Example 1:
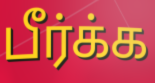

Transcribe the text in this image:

பீர்க்க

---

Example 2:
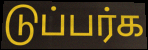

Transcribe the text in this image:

டுப்பர்க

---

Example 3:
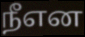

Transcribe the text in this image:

நீஎன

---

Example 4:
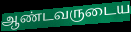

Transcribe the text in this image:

ஆண்டவருடைய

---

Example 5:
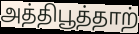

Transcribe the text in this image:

அத்திபூத்தாற்